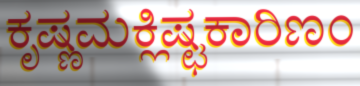
ಕೃಷ್ಣಮಕ್ಲಿಷ್ಟಕಾರಿಣಂ